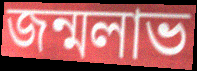
জন্মলাভ